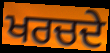
ਖਰਚਦੇ